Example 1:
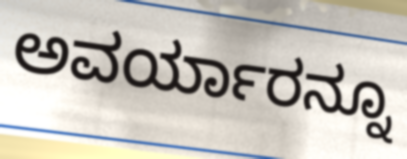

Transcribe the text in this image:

ಅವರ್ಯಾರನ್ನೂ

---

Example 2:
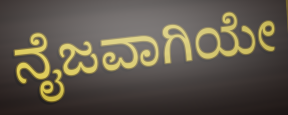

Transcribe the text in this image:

ನೈಜವಾಗಿಯೇ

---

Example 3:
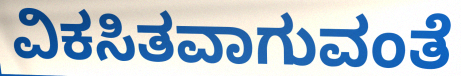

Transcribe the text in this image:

ವಿಕಸಿತವಾಗುವಂತೆ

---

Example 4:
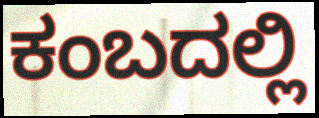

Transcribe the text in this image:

ಕಂಬದಲ್ಲಿ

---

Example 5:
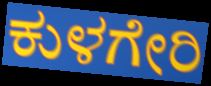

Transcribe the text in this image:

ಕುಳಗೇರಿ